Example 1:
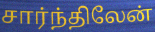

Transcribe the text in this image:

சார்ந்திலேன்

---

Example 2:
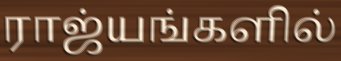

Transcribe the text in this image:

ராஜ்யங்களில்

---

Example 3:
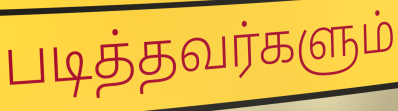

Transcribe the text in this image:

படித்தவர்களும்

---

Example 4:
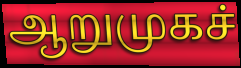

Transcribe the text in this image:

ஆறுமுகச்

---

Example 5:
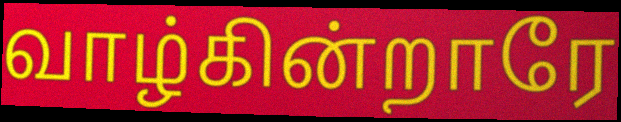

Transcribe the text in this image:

வாழ்கின்றாரே